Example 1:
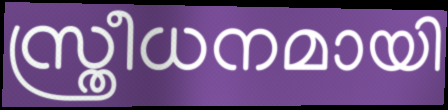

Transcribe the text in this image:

സ്ത്രീധനമായി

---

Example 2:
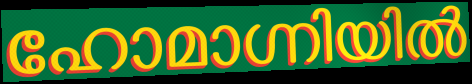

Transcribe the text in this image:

ഹോമാഗ്നിയിൽ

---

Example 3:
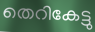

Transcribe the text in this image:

തെറികേട്ടു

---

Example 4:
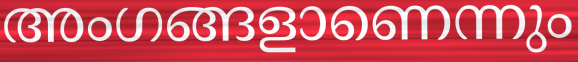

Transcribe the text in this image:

അംഗങ്ങളാണെന്നും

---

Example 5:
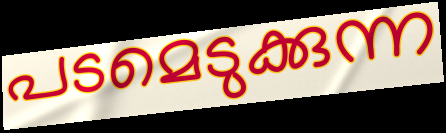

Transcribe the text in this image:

പടമെടുക്കുന്ന